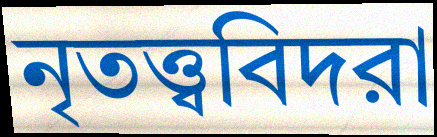
নৃতত্ত্ববিদরা